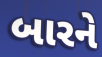
બારને